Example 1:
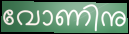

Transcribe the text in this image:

വോണിനു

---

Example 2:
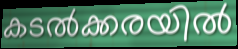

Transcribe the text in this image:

കടൽക്കരയിൽ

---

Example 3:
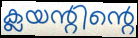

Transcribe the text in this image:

ക്ലയന്റിന്റെ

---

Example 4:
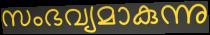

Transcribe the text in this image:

സംഭവ്യമാകുന്നു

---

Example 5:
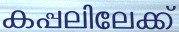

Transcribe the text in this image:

കപ്പലിലേക്ക്